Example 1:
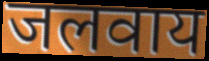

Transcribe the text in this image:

जलवाय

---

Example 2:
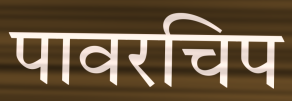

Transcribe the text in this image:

पावरचिप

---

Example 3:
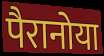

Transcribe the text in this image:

पैरानोया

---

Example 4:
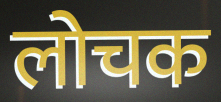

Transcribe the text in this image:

लोचक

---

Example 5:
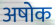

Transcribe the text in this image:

अषोक